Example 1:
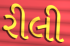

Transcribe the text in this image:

રીલી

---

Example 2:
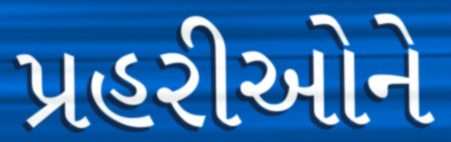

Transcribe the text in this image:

પ્રહરીઓને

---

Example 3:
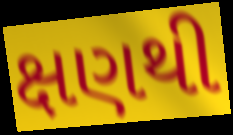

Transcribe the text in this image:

ક્ષણથી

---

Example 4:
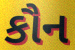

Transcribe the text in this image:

કૌન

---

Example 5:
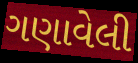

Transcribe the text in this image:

ગણાવેલી